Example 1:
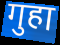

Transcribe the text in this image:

गुहा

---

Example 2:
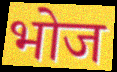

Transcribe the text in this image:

भोज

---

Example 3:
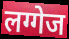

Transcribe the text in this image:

लग्गेज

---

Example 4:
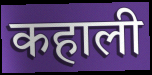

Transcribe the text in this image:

कहाली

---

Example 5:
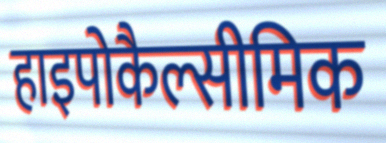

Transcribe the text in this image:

हाइपोकैल्सीमिक